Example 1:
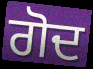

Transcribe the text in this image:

ਗੋਦ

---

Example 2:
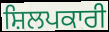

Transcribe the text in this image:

ਸ਼ਿਲਪਕਾਰੀ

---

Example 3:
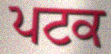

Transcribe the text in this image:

ਪਟਕ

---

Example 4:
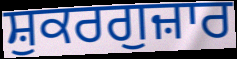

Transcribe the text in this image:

ਸ਼ੁਕਰਗੁਜ਼ਾਰ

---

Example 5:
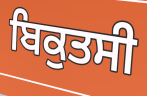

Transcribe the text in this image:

ਬਿਕੁਤਸੀ